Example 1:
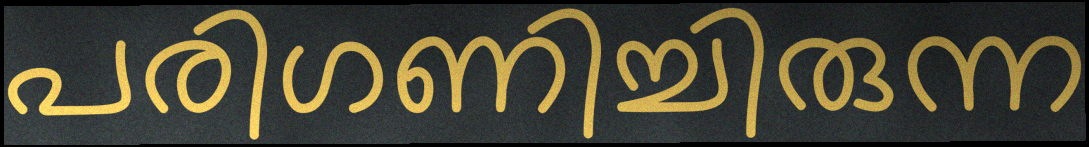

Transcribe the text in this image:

പരിഗണിച്ചിരുന്ന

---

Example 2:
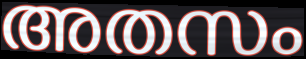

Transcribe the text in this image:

അതസം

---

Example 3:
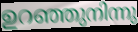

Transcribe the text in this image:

ഉറഞ്ഞുനിന്നു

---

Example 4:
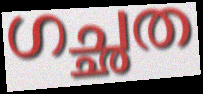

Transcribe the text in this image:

ഗച്ഛത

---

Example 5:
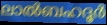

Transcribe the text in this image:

ലാൽബഹദൂർ